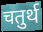
चतुर्थ